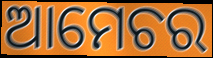
ଆମେଚର